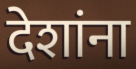
देशांना